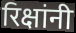
रिक्षांनी